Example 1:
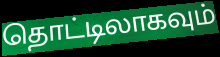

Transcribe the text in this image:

தொட்டிலாகவும்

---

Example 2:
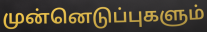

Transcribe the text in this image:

முன்னெடுப்புகளும்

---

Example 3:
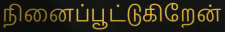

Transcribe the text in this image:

நினைப்பூட்டுகிறேன்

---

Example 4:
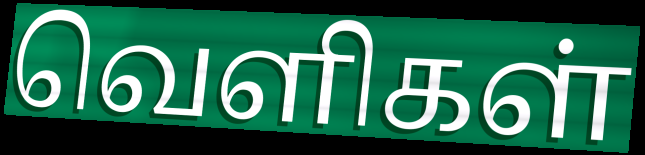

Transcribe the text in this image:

வெளிகள்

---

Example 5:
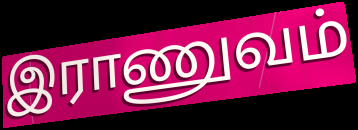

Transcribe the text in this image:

இராணுவம்